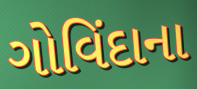
ગોવિંદાના